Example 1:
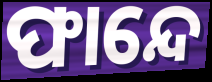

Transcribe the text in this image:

ଫାନ୍ଦେ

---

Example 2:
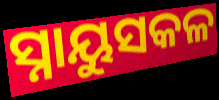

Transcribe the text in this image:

ସ୍ନାୟୁସକଳ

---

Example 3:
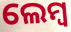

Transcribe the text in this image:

ଲେମ୍ବ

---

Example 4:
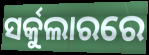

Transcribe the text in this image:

ସର୍କୁଲାରରେ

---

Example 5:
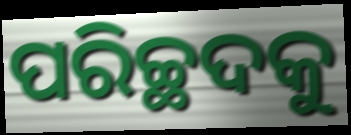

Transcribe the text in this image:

ପରିଚ୍ଛଦକୁ